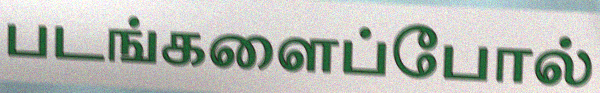
படங்களைப்போல்